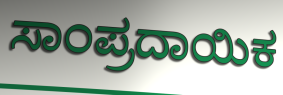
ಸಾಂಪ್ರದಾಯಿಕ